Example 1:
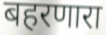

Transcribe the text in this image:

बहरणारा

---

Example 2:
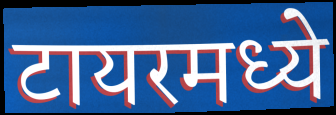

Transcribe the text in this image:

टायरमध्ये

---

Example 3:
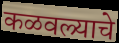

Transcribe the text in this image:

कळवल्याचे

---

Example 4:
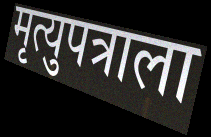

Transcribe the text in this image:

मृत्युपत्राला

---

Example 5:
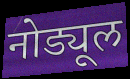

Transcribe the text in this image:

नोड्यूल